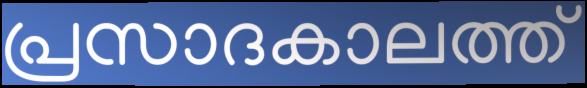
പ്രസാദകാലത്ത്